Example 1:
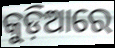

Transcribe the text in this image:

କୁଡ଼ିଆରେ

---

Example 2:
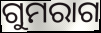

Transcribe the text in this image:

ଗୁମରାଗ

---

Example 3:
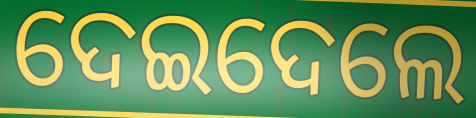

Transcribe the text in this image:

ଦେଇଦେଲେ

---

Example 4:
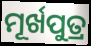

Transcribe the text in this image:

ମୂର୍ଖପୁତ୍ର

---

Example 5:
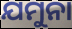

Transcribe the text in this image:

ଯମୁନା